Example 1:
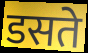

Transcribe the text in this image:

डसते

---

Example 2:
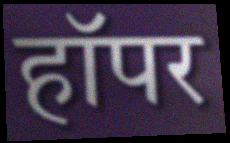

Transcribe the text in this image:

हॉपर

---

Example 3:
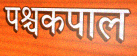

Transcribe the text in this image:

पश्चकपाल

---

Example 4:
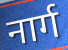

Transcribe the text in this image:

नार्ग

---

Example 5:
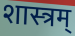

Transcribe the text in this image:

शास्त्रम्